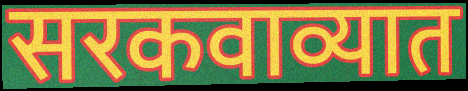
सरकवाव्यात